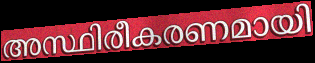
അസ്ഥിരീകരണമായി